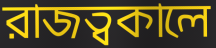
রাজত্বকালে